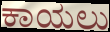
ಕಾಯಲು